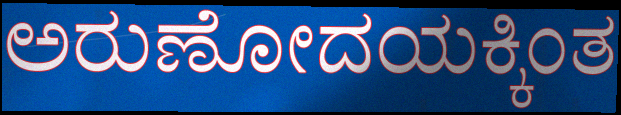
ಅರುಣೋದಯಕ್ಕಿಂತ